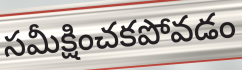
సమీక్షించకపోవడం